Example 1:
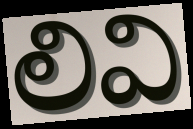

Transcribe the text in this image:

లివి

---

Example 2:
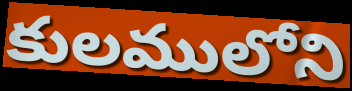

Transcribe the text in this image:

కులములోని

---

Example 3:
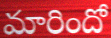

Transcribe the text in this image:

మారిందో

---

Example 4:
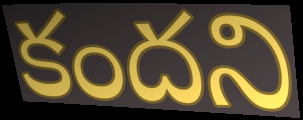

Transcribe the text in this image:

కందని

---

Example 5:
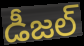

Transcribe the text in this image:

డీజల్